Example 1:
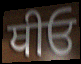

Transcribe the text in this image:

ਥੀਓ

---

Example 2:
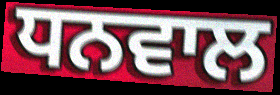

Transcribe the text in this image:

ਧਨਵਾਲ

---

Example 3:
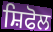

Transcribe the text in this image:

ਸ਼ਿਫੋਲ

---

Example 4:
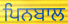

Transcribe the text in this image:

ਪਿਨਬਾਲ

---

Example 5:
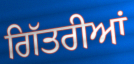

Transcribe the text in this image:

ਗਿੱਤਰੀਆਂ